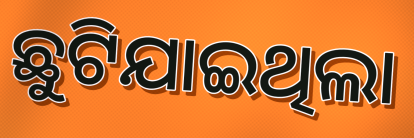
ଛୁଟିଯାଇଥିଲା